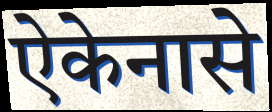
ऐकेनासे